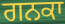
ਗਨਕਾ